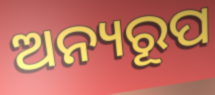
ଅନ୍ୟରୂପ